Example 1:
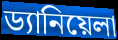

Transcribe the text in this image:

ড্যানিয়েলা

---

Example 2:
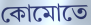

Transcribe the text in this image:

কোমোতে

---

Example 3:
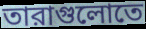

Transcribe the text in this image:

তারাগুলোতে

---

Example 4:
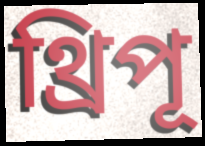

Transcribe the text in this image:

থ্রিপূ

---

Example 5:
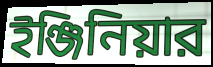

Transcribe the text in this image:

ইঞ্জিনিয়ার